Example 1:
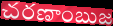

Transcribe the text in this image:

చరణాంబుజ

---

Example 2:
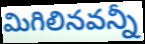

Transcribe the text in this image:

మిగిలినవన్నీ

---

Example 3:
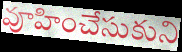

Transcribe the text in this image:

వూహించేసుకుని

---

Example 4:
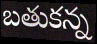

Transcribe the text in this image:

బతుకన్న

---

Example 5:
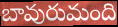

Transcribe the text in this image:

బావురుమంది